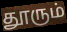
தூரும்